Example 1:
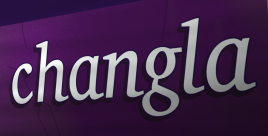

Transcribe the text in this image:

changla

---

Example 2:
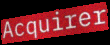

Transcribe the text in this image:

Acquirer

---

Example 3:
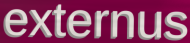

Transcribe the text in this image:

externus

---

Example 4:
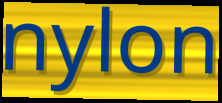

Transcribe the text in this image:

nylon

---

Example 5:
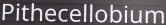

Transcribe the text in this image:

Pithecellobium